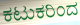
ಕಟುಕರಿಂದ